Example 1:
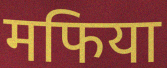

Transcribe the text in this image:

मफिया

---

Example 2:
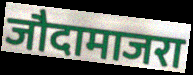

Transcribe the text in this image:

जौदामाजरा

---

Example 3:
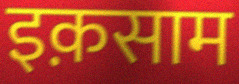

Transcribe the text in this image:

इक़साम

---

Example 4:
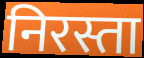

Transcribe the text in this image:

निरस्ता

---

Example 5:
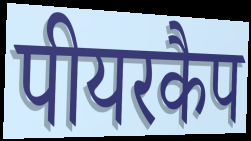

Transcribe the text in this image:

पीयरकैप